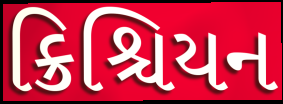
ક્રિશ્ચિયન